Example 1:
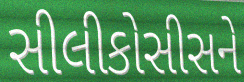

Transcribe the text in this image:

સીલીકોસીસને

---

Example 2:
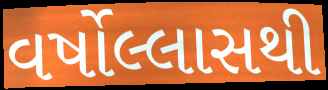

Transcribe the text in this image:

વર્ષોલ્લાસથી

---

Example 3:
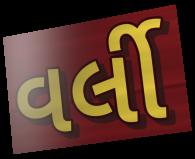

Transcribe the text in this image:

વર્લી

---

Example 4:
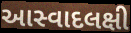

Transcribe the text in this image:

આસ્વાદલક્ષી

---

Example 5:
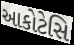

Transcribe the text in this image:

આકોટેસિ